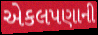
એકલપણાની